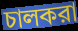
চালকরা